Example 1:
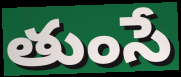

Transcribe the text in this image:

తుంసే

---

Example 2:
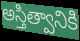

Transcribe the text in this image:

అస్తిత్వానికి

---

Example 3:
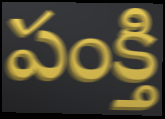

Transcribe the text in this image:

పంక్తి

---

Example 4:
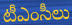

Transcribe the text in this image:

టీఎంసీలు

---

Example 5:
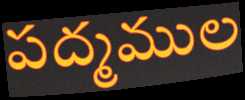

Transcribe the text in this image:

పద్మముల